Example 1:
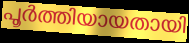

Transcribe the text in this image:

പൂർത്തിയായതായി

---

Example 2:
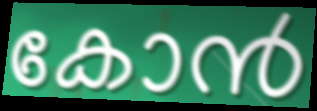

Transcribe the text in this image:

കോൻ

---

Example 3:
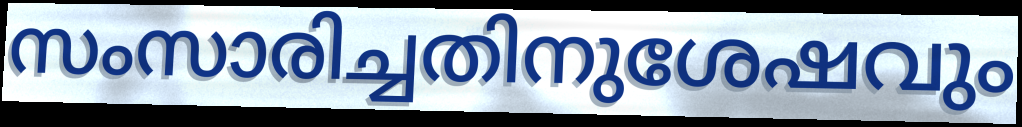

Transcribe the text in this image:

സംസാരിച്ചതിനുശേഷവും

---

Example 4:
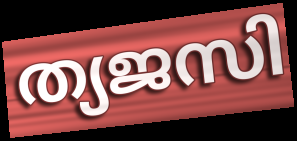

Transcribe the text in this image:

ത്യജസി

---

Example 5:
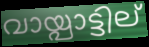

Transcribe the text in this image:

വായ്പാട്ടില്